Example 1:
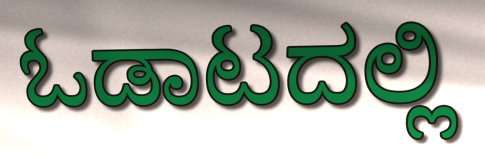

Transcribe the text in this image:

ಓಡಾಟದಲ್ಲಿ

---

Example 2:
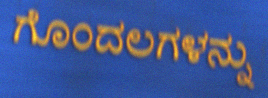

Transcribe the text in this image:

ಗೊಂದಲಗಳನ್ನು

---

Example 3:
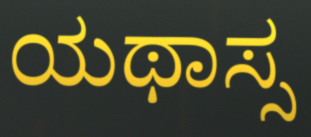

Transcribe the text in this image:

ಯಥಾಸ್ಸ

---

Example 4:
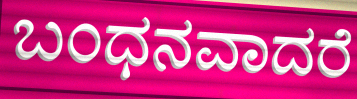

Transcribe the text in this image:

ಬಂಧನವಾದರೆ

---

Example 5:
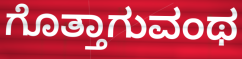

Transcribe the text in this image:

ಗೊತ್ತಾಗುವಂಥ